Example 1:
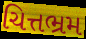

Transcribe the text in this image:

ચિત્તભ્રમ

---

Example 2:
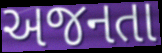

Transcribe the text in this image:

અજનતા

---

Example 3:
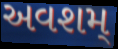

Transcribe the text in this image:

અવશમ્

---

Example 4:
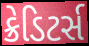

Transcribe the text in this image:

ક્રેડિટર્સ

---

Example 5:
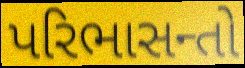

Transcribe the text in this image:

પરિભાસન્તો